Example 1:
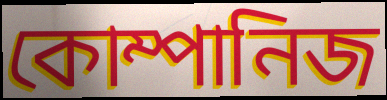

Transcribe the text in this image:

কোম্পানিজ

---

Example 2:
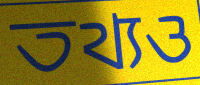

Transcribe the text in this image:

তথ্যও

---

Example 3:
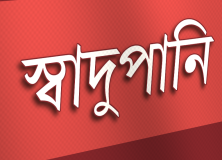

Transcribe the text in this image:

স্বাদুপানি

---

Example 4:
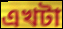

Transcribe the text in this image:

এখটা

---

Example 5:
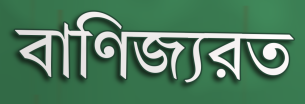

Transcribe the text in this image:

বাণিজ্যরত